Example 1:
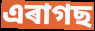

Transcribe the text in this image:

এৰাগছ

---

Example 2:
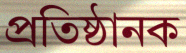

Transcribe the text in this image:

প্ৰতিষ্ঠানক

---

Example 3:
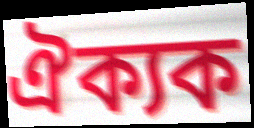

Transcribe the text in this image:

ঐক্যক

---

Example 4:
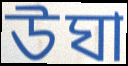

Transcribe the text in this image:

উঘা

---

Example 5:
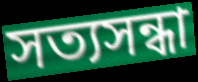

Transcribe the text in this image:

সত্যসন্ধা